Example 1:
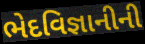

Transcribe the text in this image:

ભેદવિજ્ઞાનીની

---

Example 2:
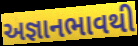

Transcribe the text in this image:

અજ્ઞાનભાવથી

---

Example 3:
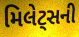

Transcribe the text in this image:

મિલેટ્સની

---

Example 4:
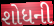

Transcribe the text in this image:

શોધની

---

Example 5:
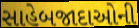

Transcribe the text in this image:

સાહેબજાદાઓની